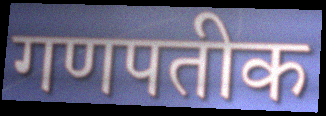
गणपतीक